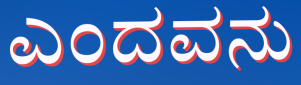
ಎಂದವನು